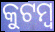
କୁଟମ୍ୱ